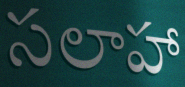
సలాహా